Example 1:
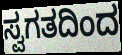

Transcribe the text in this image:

ಸ್ವಗತದಿಂದ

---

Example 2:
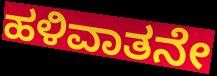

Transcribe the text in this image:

ಹಳಿವಾತನೇ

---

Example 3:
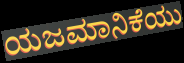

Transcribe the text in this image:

ಯಜಮಾನಿಕೆಯು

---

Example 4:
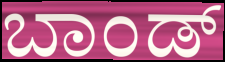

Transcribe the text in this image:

ಬಾಂಡ್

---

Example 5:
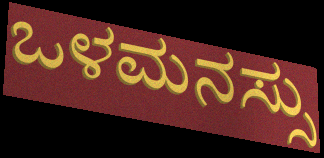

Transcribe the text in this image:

ಒಳಮನಸ್ಸು